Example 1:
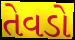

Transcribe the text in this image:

તેવડો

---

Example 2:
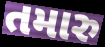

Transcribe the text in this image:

તમારુ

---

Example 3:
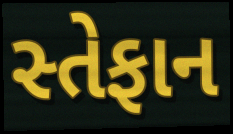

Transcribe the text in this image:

સ્તેફાન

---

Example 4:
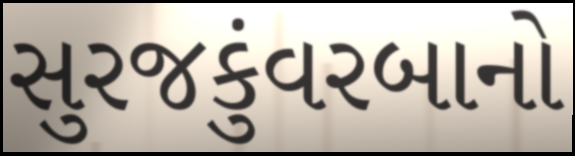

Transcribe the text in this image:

સુરજકુંવરબાનો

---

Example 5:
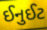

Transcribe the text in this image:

ઈનુઈટ